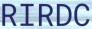
RIRDC